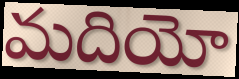
మదియో